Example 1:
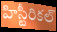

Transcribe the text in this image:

హిస్టీరికల్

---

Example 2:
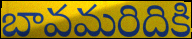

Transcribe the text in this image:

బావమరిదికి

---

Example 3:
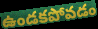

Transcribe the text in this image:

ఉండకపోవడం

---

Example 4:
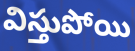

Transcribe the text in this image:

విస్తుపోయి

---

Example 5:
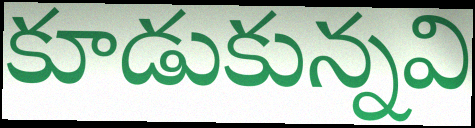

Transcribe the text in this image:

కూడుకున్నవి